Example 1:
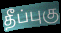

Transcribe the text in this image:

தீப்புகு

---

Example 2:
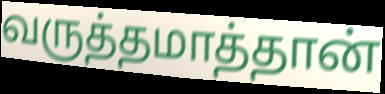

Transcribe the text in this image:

வருத்தமாத்தான்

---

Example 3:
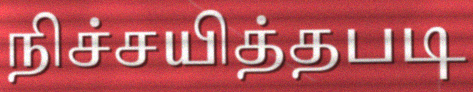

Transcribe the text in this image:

நிச்சயித்தபடி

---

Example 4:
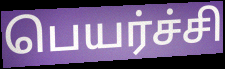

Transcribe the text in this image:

பெயர்ச்சி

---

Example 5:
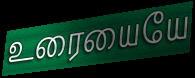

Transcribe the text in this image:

உரையையே